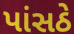
પાંસઠે